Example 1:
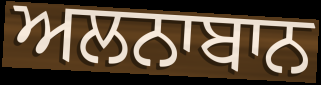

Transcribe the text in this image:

ਅਲਨਾਬਾਨ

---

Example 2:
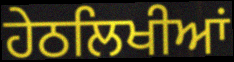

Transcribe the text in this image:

ਹੇਠਲਿਖੀਆਂ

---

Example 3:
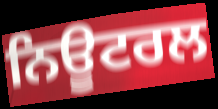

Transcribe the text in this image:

ਨਿਊਟਰਲ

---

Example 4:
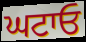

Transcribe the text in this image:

ਘਟਾਓ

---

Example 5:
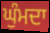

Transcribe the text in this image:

ਘੁੰਮਦਾ